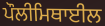
ਪੌਲੀਮਿਥਾਈਲ